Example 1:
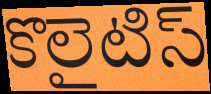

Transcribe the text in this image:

కొలైటిస్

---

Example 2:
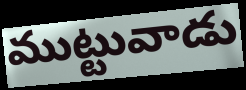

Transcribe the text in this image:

ముట్టువాడు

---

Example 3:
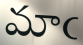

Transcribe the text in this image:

మాఁ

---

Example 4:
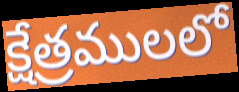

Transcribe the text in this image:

క్షేత్రములలో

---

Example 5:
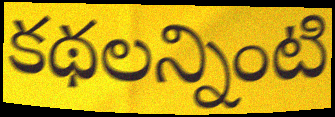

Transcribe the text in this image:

కథలన్నింటి